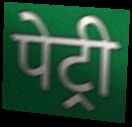
पेट्री